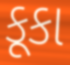
કૂકા